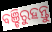
ବଞ୍ଚିରୁହନ୍ତୁ